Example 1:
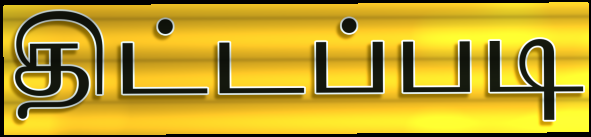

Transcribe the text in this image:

திட்டப்படி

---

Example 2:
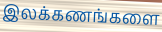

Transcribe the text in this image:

இலக்கணங்களை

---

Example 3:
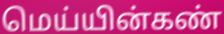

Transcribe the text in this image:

மெய்யின்கண்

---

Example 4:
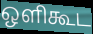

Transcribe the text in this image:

ஒளிகூட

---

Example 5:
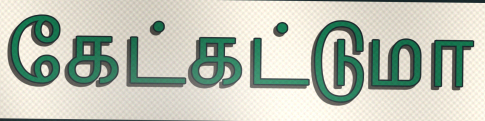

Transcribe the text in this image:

கேட்கட்டுமா